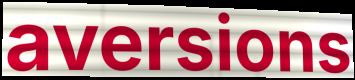
aversions